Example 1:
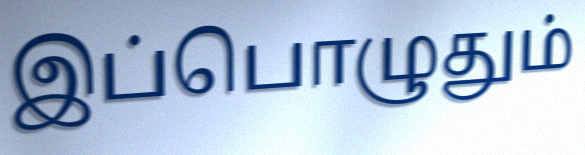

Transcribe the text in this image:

இப்பொழுதும்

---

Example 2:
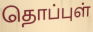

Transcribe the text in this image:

தொப்புள்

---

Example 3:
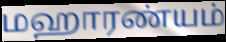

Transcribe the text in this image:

மஹாரண்யம்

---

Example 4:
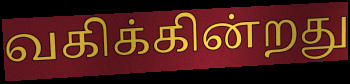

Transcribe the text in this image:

வகிக்கின்றது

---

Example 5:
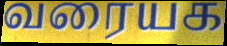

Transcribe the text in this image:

வரையக